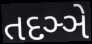
તદઞ્ઞે